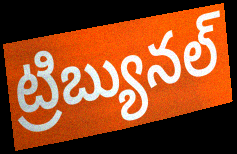
ట్రిబ్యునల్